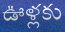
ఊళ్లకు